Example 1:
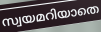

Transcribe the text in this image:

സ്വയമറിയാതെ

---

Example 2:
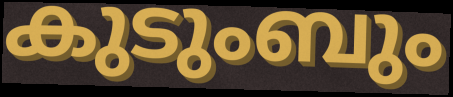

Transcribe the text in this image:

കുടുംബും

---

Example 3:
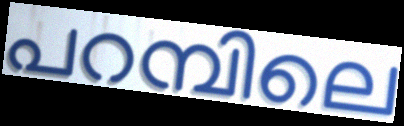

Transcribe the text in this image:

പറമ്പിലെ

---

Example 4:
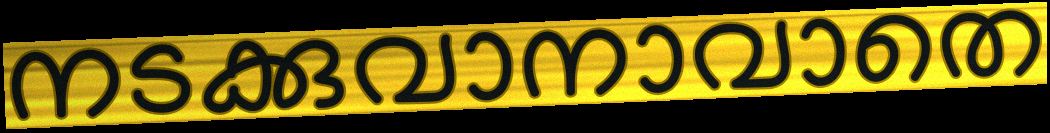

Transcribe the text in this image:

നടക്കുവാനാവാതെ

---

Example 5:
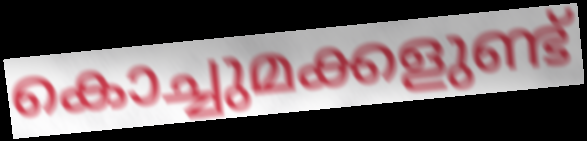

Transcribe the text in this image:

കൊച്ചുമക്കളുണ്ട്